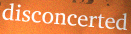
disconcerted